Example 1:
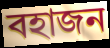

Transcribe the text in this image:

বহাজন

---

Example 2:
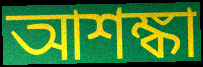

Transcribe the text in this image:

আশঙ্কা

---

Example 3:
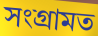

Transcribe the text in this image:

সংগ্ৰামত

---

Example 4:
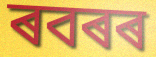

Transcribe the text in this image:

ৰবৰৰ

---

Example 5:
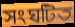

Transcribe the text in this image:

সংঘটিত